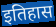
इतिहास